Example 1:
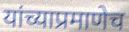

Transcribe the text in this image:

यांच्याप्रमाणेच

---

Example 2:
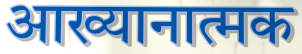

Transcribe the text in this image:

आख्यानात्मक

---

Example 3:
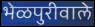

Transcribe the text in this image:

भेळपुरीवाले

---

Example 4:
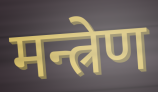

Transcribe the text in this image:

मन्त्रेण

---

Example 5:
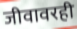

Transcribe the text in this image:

जीवावरही